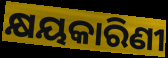
କ୍ଷୟକାରିଣୀ